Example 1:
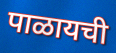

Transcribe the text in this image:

पाळायची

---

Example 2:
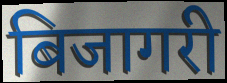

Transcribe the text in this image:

बिजागरी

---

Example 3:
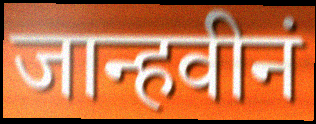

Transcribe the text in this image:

जान्हवीनं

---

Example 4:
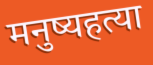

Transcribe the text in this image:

मनुष्यहत्या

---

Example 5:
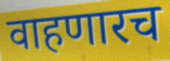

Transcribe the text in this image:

वाहणारच